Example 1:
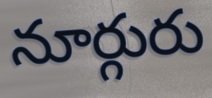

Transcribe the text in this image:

నూర్గురు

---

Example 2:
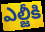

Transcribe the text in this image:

ఎల్జీకి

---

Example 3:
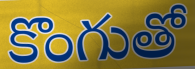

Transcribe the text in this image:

కొంగుతో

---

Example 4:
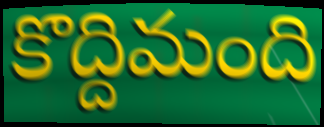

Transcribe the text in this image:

కొద్దిమంది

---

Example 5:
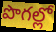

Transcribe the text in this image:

పొగల్లో